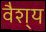
वैश्य